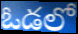
ఓడలో